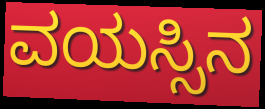
ವಯಸ್ಸಿನ